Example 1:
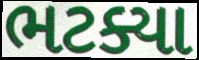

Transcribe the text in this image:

ભટક્યા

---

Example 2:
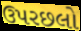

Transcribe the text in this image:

ઉપરછલો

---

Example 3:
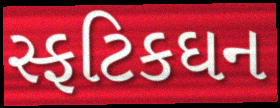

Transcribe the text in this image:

સ્ફટિકઘન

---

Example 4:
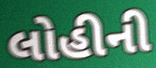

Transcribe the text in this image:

લોહીની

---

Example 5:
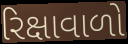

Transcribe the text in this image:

રિક્ષાવાળો